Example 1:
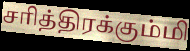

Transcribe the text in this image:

சரித்திரக்கும்மி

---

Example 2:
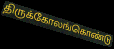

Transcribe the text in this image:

திருக்கோலங்கொண்டு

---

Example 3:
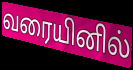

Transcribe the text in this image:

வரையினில்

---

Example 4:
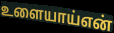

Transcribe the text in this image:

உளையாய்என்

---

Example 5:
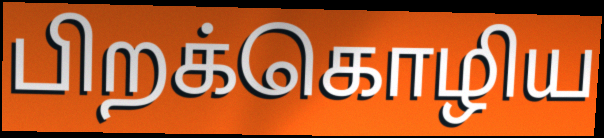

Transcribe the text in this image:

பிறக்கொழிய